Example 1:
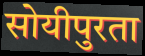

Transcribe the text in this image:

सोयीपुरता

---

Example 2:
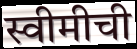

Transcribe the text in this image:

स्वीमीची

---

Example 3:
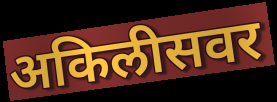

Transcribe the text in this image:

अकिलीसवर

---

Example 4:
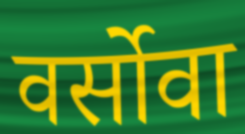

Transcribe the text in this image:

वर्सोवा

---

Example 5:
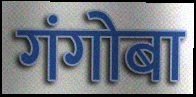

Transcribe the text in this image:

गंगोबा